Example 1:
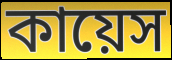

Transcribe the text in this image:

কায়েস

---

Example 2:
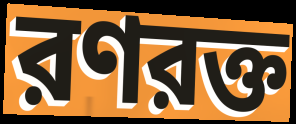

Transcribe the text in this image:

রণরক্ত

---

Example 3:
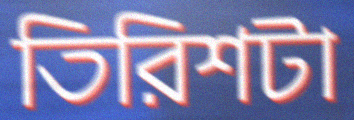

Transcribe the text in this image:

তিরিশটা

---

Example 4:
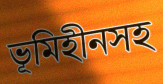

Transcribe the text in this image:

ভূমিহীনসহ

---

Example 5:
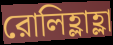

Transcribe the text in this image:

রোলিহ্লাহ্লা